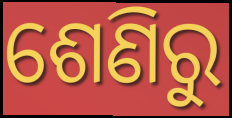
ଶେଣିରୁ